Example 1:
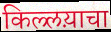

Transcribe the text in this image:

किल्लय़ाचा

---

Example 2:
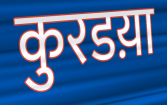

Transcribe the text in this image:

कुरडय़ा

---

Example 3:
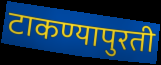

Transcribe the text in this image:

टाकण्यापुरती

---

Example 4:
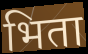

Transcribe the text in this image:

भिता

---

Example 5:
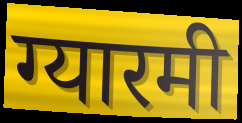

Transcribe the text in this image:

ग्यारमी